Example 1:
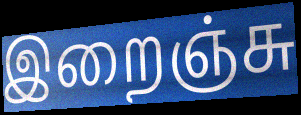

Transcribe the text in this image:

இறைஞ்சு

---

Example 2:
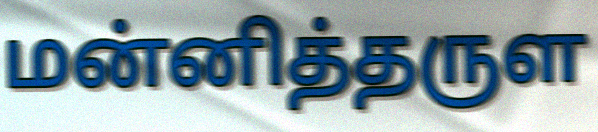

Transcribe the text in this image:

மன்னித்தருள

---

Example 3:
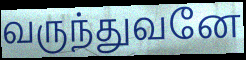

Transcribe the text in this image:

வருந்துவனே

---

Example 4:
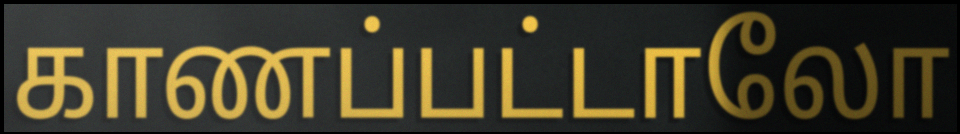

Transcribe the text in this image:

காணப்பட்டாலோ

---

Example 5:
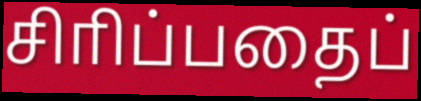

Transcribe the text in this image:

சிரிப்பதைப்